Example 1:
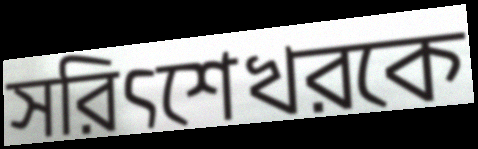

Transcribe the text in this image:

সরিৎশেখরকে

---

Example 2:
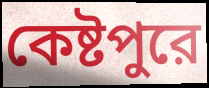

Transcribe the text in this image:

কেষ্টপুরে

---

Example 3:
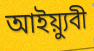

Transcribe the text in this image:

আইয়্যুবী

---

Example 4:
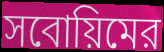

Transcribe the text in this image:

সবোয়িমের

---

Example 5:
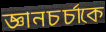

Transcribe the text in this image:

জ্ঞানচর্চাকে